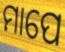
ମାପେ